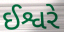
ઈશ્વરે